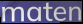
maten